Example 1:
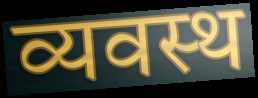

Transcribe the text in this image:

व्यवस्थ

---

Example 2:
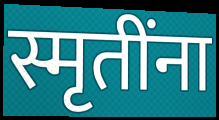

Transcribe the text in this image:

स्मृतींना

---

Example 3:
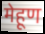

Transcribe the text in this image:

मेहूण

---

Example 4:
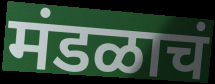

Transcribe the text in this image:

मंडळाचं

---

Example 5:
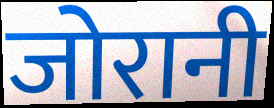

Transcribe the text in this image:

जोरानी